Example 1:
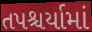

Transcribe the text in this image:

તપશ્ચર્યામાં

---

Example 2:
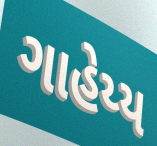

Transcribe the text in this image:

ગાહેય્ય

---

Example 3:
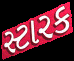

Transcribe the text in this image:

સ્ટારક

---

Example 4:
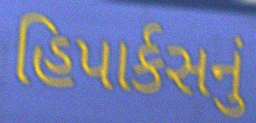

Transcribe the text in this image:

હિપાર્કસનું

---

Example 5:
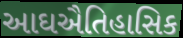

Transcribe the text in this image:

આઘઐતિહાસિક